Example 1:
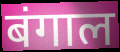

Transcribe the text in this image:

बंगाल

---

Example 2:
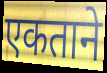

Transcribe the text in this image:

एकताने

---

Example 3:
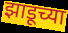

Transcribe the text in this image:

झाडूच्या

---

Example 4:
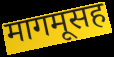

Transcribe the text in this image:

मागमूसह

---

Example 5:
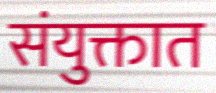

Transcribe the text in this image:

संयुक्तात